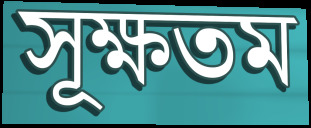
সূক্ষতম